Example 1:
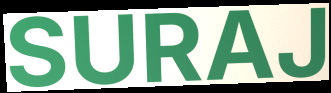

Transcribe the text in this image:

SURAJ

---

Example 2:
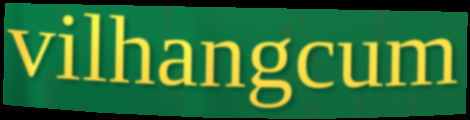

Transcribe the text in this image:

vilhangcum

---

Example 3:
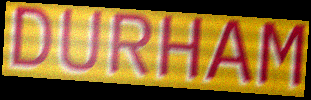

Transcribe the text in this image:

DURHAM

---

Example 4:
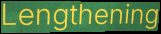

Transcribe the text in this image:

Lengthening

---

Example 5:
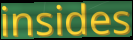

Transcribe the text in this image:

insides